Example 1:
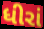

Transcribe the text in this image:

ધીરાં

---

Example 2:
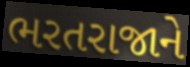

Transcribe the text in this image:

ભરતરાજાને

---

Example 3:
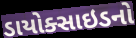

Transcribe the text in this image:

ડાયોક્સાઇડનો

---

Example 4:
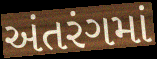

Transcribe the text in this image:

અંતરંગમાં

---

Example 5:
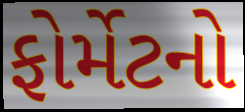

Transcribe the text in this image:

ફોર્મેટનો